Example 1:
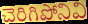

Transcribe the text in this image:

చెరిగిపోనివి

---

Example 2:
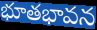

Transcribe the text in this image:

భూతభావన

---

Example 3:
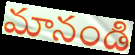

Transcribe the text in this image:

మానండి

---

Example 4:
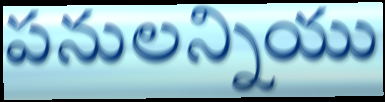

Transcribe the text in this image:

పనులన్నియు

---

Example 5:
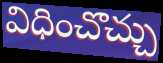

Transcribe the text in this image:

విధించొచ్చు